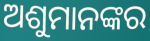
ଅଶୁମାନଙ୍କର